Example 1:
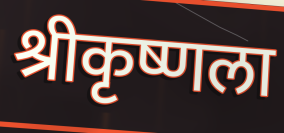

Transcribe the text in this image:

श्रीकृष्णला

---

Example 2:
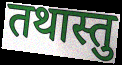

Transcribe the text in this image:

तथास्तु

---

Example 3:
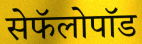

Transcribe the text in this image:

सेफॅलोपॉड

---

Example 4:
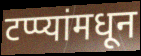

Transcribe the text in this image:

टप्प्यांमधून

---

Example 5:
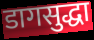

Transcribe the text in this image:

डागसुद्धा